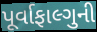
પૂર્વાફાલ્ગુની